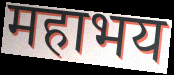
महाभय